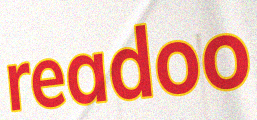
readoo